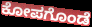
ಕೋಪಗೊಂಡೆ